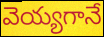
వెయ్యగానే